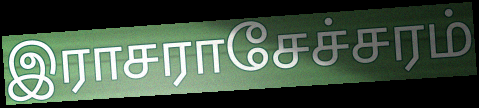
இராசராசேச்சரம்